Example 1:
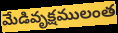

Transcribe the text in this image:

మేడివృక్షములంత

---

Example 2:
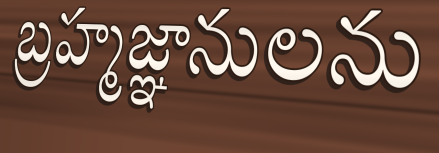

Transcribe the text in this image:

బ్రహ్మజ్ఞానులను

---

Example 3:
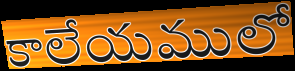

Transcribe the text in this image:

కాలేయములో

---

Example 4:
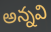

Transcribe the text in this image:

అన్నవి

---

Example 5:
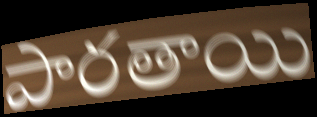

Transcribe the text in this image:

పారతాయి